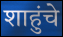
शाहुंचे